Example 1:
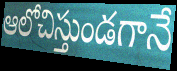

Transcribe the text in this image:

ఆలోచిస్తుండగానే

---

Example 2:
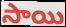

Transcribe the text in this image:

సాయి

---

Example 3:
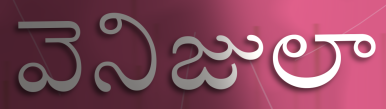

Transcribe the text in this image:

వెనిజులా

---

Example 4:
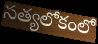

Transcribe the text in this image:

సత్యలోకంలో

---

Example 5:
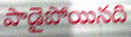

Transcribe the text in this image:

పాడైపోయినది